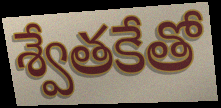
శ్వేతకేతో